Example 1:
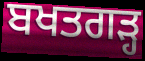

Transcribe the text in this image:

ਬਖਤਗੜ੍ਹ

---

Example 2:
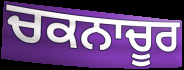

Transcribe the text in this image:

ਚਕਨਾਚੂਰ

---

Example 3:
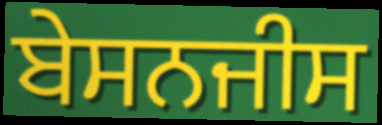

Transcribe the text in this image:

ਬੇਸਨਜੀਸ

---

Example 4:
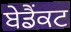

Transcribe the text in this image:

ਬੇਡੈਂਕਟ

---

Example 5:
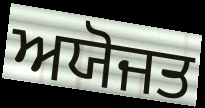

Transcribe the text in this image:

ਅਯੋਜਤ